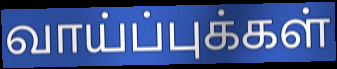
வாய்ப்புக்கள்